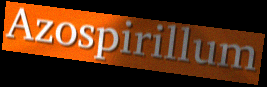
Azospirillum